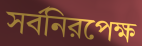
সর্বনিরপেক্ষ